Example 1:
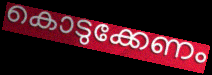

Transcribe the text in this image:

കൊടുക്കേണം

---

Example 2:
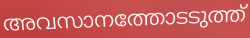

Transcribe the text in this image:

അവസാനത്തോടടുത്ത്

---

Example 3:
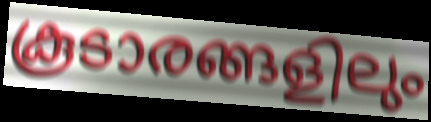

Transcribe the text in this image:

കൂടാരങ്ങളിലും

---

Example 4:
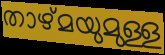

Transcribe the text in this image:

താഴ്മയുമുള്ള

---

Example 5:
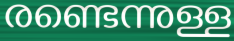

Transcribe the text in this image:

രണ്ടെന്നുള്ള